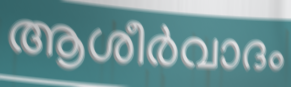
ആശീർവാദം